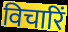
विचारिं